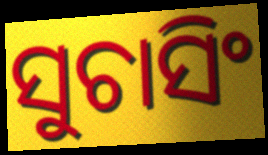
ସୁଚାସିଂ